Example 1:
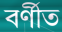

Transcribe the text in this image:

বর্ণীত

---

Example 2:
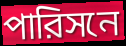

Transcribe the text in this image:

পারিসনে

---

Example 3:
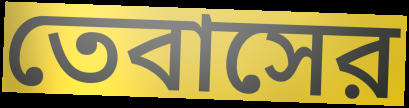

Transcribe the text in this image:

তেবাসের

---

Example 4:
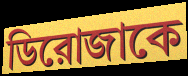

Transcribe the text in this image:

ডিরোজাকে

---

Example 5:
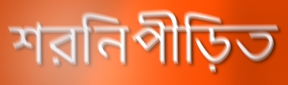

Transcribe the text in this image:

শরনিপীড়িত